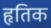
हृतिक